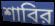
শাবির